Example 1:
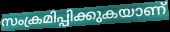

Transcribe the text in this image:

സംക്രമിപ്പിക്കുകയാണ്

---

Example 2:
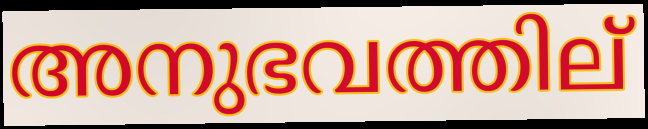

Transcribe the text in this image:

അനുഭവത്തില്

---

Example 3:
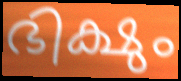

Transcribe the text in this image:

ഭിക്ഷും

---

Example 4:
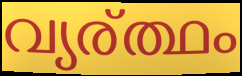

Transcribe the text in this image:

വ്യര്ത്ഥം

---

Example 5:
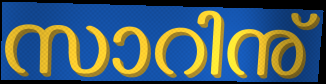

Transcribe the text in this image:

സാറിനു്